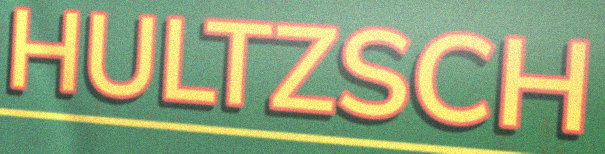
HULTZSCH